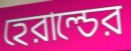
হেরাল্ডের